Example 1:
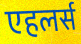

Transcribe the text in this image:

एहलर्स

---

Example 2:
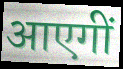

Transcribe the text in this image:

आएगीं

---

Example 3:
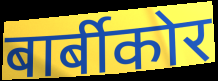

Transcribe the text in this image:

बार्बीकोर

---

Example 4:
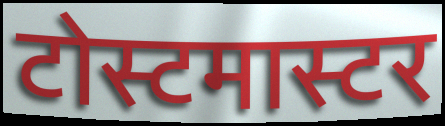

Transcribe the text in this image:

टोस्टमास्टर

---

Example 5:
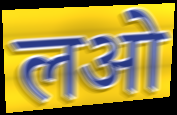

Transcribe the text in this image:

लओ